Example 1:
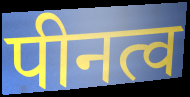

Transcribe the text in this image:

पीनत्व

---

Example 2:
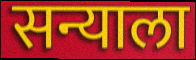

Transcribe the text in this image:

सन्याला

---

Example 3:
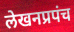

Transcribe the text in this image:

लेखनप्रपंच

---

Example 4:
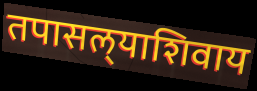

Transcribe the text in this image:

तपासल्याशिवाय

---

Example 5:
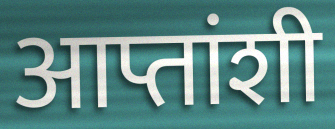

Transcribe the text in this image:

आप्तांशी